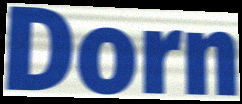
Dorn